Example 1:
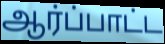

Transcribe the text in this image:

ஆர்ப்பாட்ட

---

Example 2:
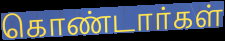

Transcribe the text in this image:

கொண்டார்கள்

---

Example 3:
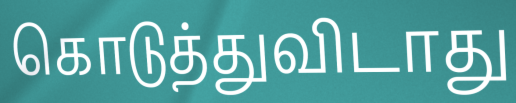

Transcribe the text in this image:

கொடுத்துவிடாது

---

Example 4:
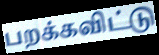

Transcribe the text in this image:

பறக்கவிட்டு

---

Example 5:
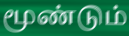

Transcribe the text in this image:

மூண்டும்